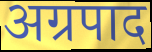
अग्रपाद